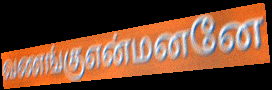
வணங்குஎன்மனனே